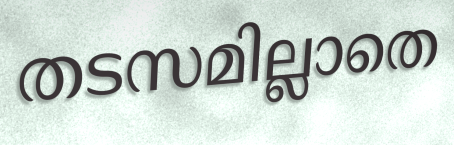
തടസമില്ലാതെ